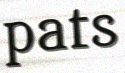
pats